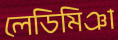
লেডিমিঞা